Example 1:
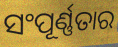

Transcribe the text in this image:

ସଂପୂର୍ଣ୍ଣତାର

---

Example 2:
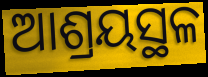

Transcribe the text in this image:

ଆଶ୍ରୟସ୍ଥଳ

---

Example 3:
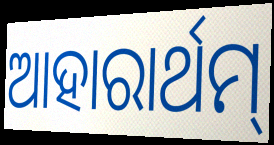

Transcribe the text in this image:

ଆହାରାର୍ଥମ୍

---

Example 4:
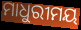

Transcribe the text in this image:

ମାଧୁରୀମୟ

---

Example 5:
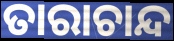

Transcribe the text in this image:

ତାରାଚାନ୍ଦ